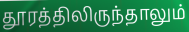
தூரத்திலிருந்தாலும்